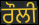
ਰੌਲੀ